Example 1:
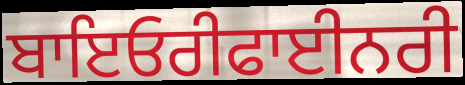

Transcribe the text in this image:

ਬਾਇਓਰੀਫਾਈਨਰੀ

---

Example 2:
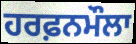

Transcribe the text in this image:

ਹਰਫ਼ਨਮੌਲਾ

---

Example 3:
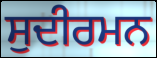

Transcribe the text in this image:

ਸੁਦੀਰਮਨ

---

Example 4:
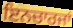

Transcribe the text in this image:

ਇਨਚਾਰਜਾਂ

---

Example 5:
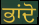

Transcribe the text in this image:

ਭਾਂਦੋ